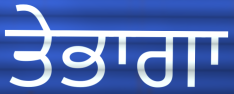
ਤੇਭਾਗਾ